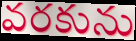
వరకును